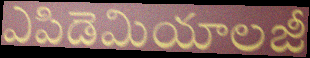
ఎపిడెమియాలజీ